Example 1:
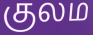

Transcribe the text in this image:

குலம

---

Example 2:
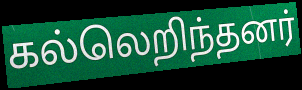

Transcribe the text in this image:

கல்லெறிந்தனர்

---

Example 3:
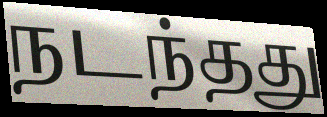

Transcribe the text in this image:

நடந்தது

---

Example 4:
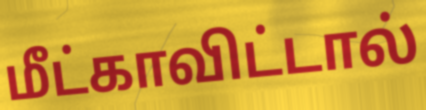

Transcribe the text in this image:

மீட்காவிட்டால்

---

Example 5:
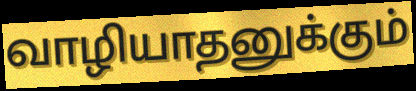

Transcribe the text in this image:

வாழியாதனுக்கும்